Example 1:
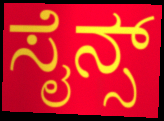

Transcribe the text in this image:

ಸೈನ್ಸ್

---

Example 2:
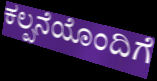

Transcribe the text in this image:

ಕಲ್ಪನೆಯೊಂದಿಗೆ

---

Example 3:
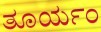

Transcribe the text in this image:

ತೂರ್ಯಂ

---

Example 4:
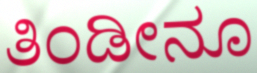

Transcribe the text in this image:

ತಿಂಡೀನೂ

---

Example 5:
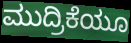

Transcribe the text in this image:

ಮುದ್ರಿಕೆಯೂ